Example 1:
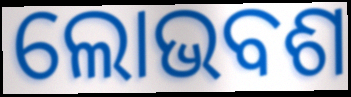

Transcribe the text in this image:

ଲୋଭବଶ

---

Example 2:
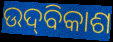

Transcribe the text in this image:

ଉଦ୍‌ବିକାଶ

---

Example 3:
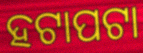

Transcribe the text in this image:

ହଟାପଟା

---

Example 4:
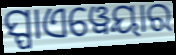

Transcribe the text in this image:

ସ୍ପାଏୱେୟାର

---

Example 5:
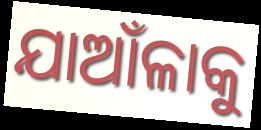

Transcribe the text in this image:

ଯାଆଁଳାକୁ